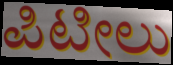
ಪಿಟೀಲು